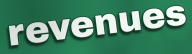
revenues